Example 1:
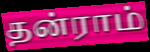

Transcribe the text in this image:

தன்ராம்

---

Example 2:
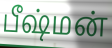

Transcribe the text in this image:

பீஷ்மன்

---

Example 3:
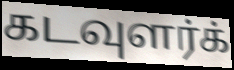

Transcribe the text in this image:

கடவுளர்க்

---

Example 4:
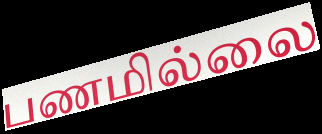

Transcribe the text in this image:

பணமில்லை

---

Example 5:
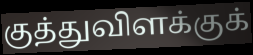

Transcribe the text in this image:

குத்துவிளக்குக்